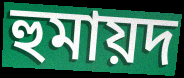
হুমায়দ